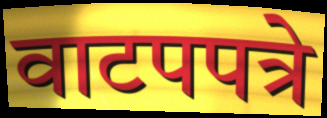
वाटपपत्रे